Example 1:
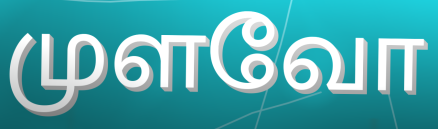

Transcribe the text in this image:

முளவோ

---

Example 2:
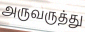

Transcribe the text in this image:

அருவருத்து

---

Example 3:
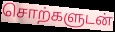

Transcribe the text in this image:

சொற்களுடன்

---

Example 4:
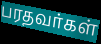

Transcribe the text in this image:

பரதவர்கள்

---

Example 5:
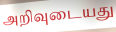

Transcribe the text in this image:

அறிவுடையது